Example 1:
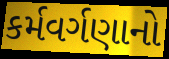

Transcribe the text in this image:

કર્મવર્ગણાનો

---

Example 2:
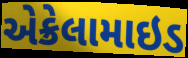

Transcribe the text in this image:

એક્રેલામાઇડ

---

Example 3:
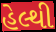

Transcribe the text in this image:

હેલ્થી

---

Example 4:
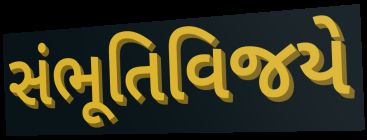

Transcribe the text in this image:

સંભૂતિવિજયે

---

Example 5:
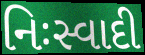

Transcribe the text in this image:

નિઃસ્વાદી